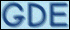
GDE